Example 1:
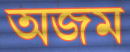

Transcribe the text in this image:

অজম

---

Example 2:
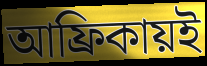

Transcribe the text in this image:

আফ্রিকায়ই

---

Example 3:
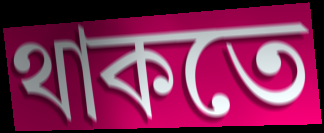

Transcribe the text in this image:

থাকতে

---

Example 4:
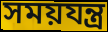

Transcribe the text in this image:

সময়যন্ত্র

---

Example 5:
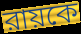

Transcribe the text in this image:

রায়কে